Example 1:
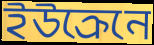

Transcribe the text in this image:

ইউক্রেনে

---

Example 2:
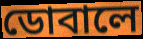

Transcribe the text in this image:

ডোবালে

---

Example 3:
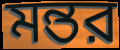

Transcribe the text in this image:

মন্তর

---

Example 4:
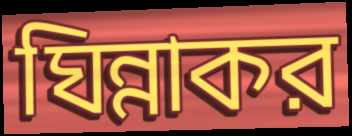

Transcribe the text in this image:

ঘিন্নাকর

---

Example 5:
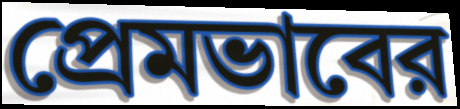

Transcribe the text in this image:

প্রেমভাবের